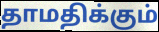
தாமதிக்கும்